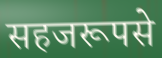
सहजरूपसे